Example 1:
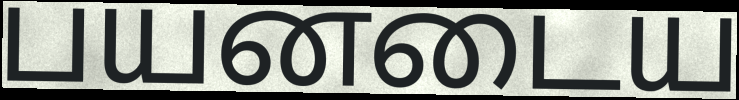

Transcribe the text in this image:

பயனடைய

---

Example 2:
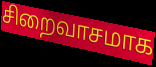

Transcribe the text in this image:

சிறைவாசமாக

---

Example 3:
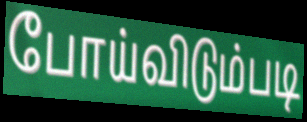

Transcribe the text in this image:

போய்விடும்படி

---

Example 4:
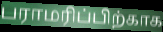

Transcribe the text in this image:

பராமரிப்பிற்காக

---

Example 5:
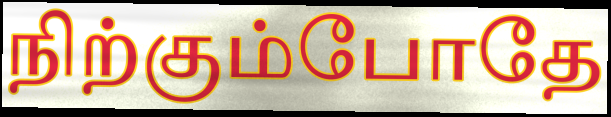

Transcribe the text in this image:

நிற்கும்போதே